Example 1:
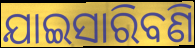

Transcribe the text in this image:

ଯାଇସାରିବଣି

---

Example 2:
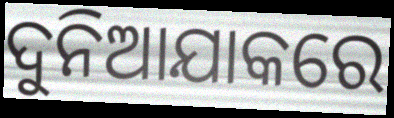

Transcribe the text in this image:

ଦୁନିଆଯାକରେ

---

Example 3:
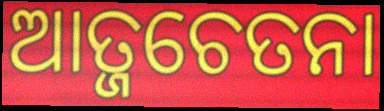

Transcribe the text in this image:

ଆତ୍ଜଚେତନା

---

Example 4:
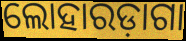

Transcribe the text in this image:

ଲୋହାରଡ଼ାଗା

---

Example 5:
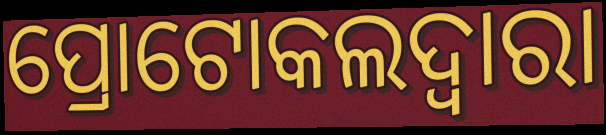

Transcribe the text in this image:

ପ୍ରୋଟୋକଲଦ୍ୱାରା